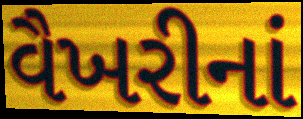
વૈખરીનાં